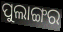
ପୁଲାଙ୍ଗର